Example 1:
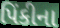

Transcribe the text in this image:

પિંકીના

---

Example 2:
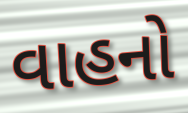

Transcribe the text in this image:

વાહનો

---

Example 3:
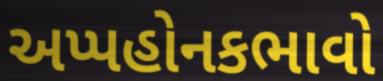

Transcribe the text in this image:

અપ્પહોનકભાવો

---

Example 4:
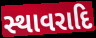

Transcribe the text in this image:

સ્થાવરાદિ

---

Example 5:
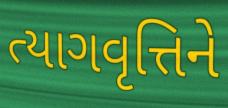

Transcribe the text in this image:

ત્યાગવૃત્તિને